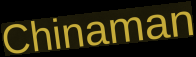
Chinaman